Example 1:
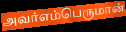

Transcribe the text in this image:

அவர்எம்பெருமான்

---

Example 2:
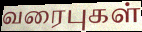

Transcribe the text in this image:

வரைபுகள்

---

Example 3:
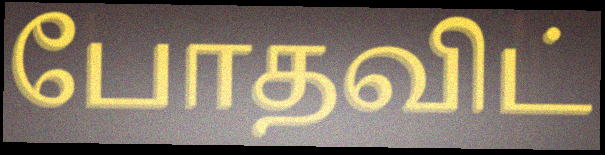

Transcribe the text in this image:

போதவிட்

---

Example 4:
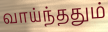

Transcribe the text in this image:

வாய்ந்ததும்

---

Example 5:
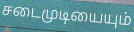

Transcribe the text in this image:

சடைமுடியையும்